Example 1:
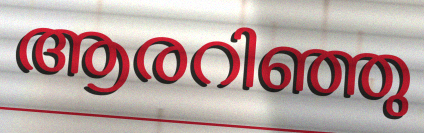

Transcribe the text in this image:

ആരറിഞ്ഞു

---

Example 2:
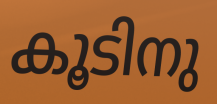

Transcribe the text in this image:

കൂടിനു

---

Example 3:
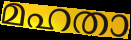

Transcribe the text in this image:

മഹതാ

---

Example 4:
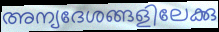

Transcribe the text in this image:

അന്യദേശങ്ങളിലേക്കു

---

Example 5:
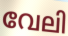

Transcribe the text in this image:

വേലി